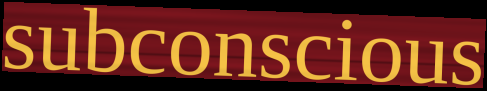
subconscious